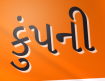
કુંપની